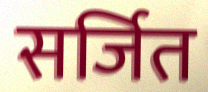
सर्जित